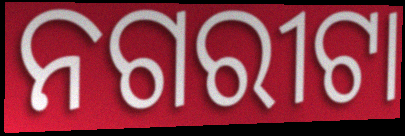
ନଗରୀଟା